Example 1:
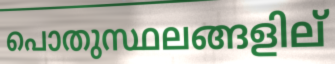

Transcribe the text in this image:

പൊതുസ്ഥലങ്ങളില്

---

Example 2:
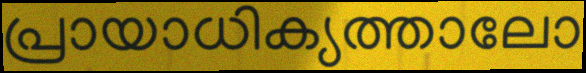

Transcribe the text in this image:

പ്രായാധിക്യത്താലോ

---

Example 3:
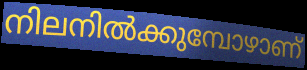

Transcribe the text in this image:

നിലനിൽക്കുമ്പോഴാണ്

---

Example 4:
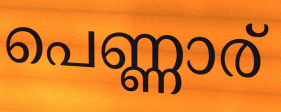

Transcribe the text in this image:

പെണ്ണാര്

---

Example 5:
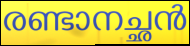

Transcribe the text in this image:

രണ്ടാനച്ഛൻ